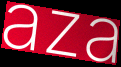
aza